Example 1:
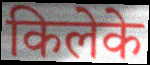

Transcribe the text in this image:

किलेके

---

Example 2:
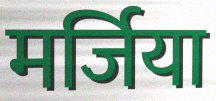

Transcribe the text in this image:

मर्जिया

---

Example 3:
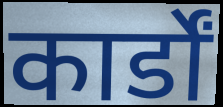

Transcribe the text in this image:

कार्डों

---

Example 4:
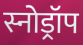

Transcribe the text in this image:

स्नोड्रॉप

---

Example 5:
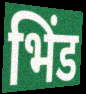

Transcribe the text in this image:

भिंड